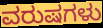
ವರುಷಗಳು